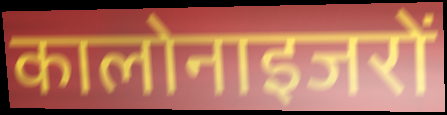
कालोनाइजरों